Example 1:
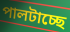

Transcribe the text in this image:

পালটাচ্ছে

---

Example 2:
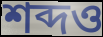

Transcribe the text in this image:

শব্দও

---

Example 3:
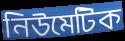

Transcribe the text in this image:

নিউমেটিক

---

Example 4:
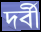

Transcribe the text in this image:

দর্বী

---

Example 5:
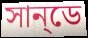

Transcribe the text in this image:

সান্‌ডে